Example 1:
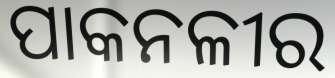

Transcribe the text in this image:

ପାକନଳୀର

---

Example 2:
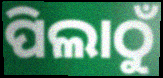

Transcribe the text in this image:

ପିଲାଠୁଁ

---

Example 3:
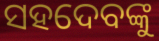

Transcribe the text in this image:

ସହଦେବଙ୍କୁ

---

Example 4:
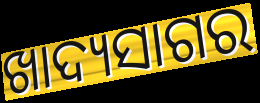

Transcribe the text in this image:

ଖାଦ୍ୟସାଗର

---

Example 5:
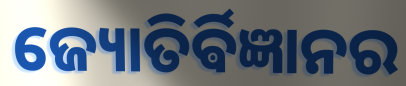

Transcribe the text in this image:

ଜ୍ୟୋତିର୍ଵିଜ୍ଞାନର